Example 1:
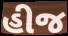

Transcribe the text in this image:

હીજ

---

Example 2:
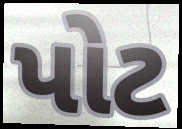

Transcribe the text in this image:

પોટ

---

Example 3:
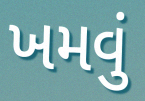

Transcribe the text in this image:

ખમવું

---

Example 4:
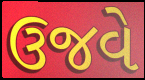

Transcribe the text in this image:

ઉજવે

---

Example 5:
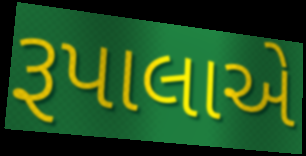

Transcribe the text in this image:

રૂપાલાએ